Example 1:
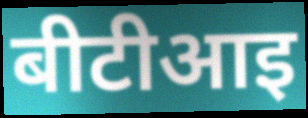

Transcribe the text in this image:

बीटीआइ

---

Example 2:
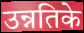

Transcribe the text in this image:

उन्नतिके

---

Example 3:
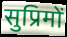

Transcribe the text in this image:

सुप्रिमों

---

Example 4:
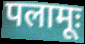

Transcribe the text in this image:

पलामूः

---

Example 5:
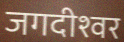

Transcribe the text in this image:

जगदीश्वर